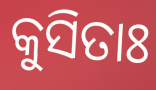
କୁସିତାଃ